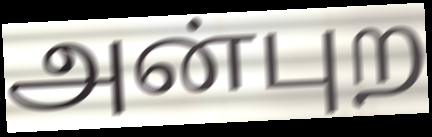
அன்புற